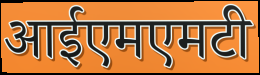
आईएमएमटी